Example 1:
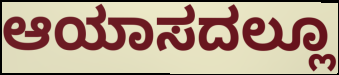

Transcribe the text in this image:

ಆಯಾಸದಲ್ಲೂ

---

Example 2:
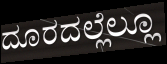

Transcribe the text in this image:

ದೂರದಲ್ಲೆಲ್ಲೂ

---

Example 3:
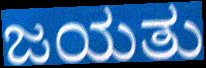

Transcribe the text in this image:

ಜಯತು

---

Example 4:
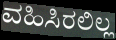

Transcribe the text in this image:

ವಹಿಸಿರಲಿಲ್ಲ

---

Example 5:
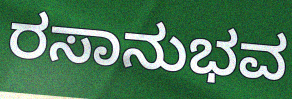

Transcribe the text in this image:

ರಸಾನುಭವ